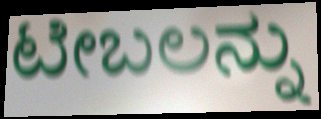
ಟೇಬಲನ್ನು